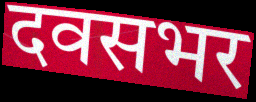
दवसभर